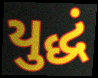
યુદ્ધં